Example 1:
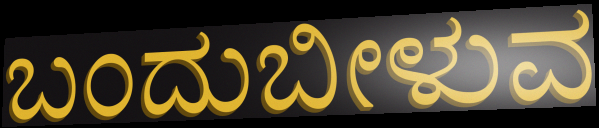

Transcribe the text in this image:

ಬಂದುಬೀಳುವ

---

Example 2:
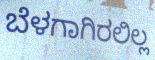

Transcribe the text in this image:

ಬೆಳಗಾಗಿರಲಿಲ್ಲ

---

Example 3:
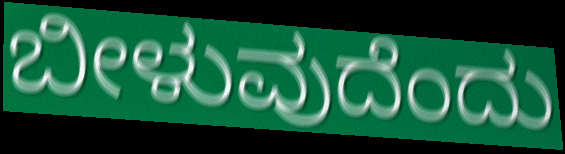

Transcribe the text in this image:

ಬೀಳುವುದೆಂದು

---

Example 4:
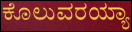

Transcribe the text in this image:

ಕೊಲುವರಯ್ಯಾ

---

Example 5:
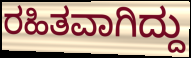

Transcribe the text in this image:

ರಹಿತವಾಗಿದ್ದು